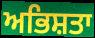
ਅਭਿਸ਼ਤਾ